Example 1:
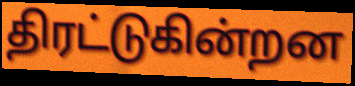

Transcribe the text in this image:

திரட்டுகின்றன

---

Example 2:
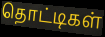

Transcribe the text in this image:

தொட்டிகள்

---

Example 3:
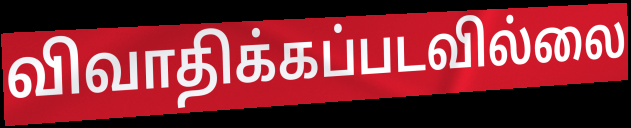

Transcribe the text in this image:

விவாதிக்கப்படவில்லை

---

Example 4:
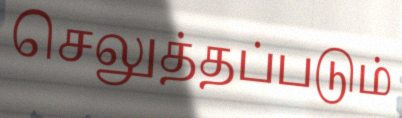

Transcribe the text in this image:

செலுத்தப்படும்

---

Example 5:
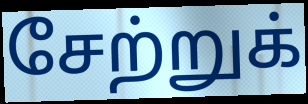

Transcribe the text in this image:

சேற்றுக்